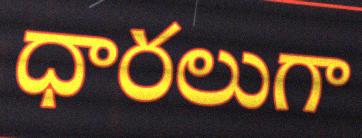
ధారలుగా